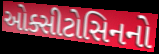
ઓક્સીટોસિનનો